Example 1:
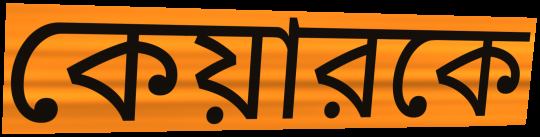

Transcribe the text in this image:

কেয়ারকে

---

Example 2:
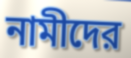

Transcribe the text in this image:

নামীদের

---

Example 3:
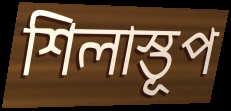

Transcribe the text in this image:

শিলাস্তূপ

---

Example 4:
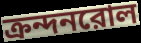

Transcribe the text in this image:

ক্রন্দনরোল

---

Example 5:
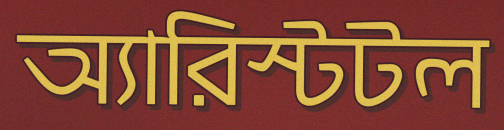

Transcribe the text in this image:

অ্যারিস্টটল